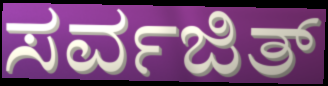
ಸರ್ವಜಿತ್